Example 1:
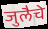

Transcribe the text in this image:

जुलैचे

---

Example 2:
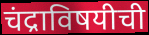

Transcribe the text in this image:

चंद्राविषयीची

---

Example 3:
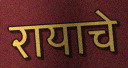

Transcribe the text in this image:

रायाचे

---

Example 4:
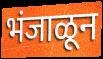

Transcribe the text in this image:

भंजाळून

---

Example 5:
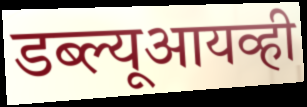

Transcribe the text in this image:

डब्ल्यूआयव्ही